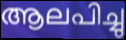
ആലപിച്ചു